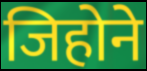
जिहोने